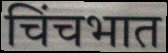
चिंचभात